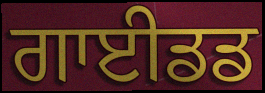
ਗਾਈਡਡ